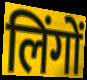
लिंगों